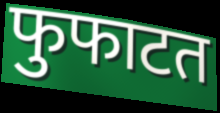
फुफाटत